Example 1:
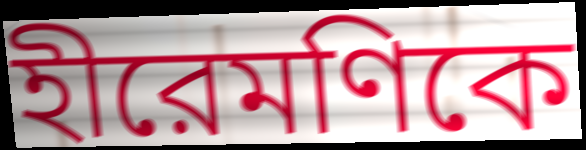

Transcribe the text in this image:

হীরেমণিকে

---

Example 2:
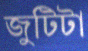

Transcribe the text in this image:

জুটিটা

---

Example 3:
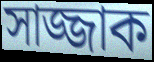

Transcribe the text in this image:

সাজ্জাক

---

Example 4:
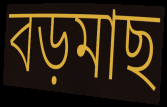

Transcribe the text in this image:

বড়মাছ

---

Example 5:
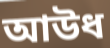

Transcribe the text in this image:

আউধ